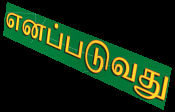
எனப்படுவது